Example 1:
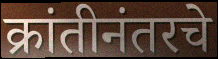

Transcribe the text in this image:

क्रांतीनंतरचे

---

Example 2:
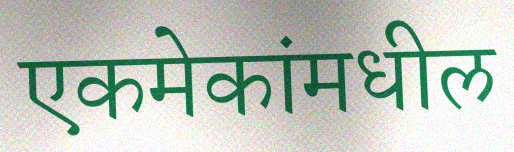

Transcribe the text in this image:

एकमेकांमधील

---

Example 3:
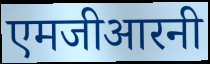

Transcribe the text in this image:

एमजीआरनी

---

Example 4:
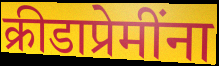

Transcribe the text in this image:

क्रीडाप्रेमींना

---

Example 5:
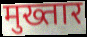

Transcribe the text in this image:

मुख्तार